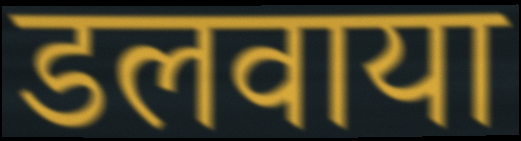
डलवाया